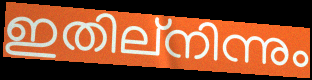
ഇതില്നിന്നും